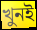
খুনই